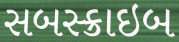
સબસ્ક્રાઇબ